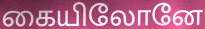
கையிலோனே